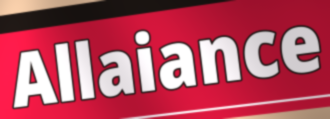
Allaiance